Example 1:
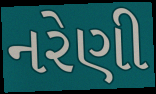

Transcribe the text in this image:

નરેણી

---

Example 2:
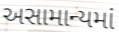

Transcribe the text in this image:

અસામાન્યમાં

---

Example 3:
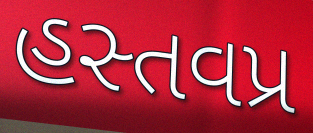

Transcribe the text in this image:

હસ્તવપ્ર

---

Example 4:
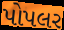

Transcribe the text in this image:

પોપલર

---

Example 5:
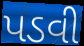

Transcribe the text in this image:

પડવી